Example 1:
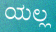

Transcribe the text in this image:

ಯಲ್ಲ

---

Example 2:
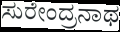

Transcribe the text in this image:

ಸುರೇಂದ್ರನಾಥ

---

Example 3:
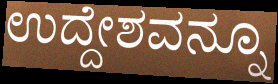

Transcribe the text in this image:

ಉದ್ದೇಶವನ್ನೂ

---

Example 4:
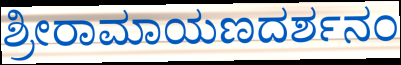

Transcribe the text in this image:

ಶ್ರೀರಾಮಾಯಣದರ್ಶನಂ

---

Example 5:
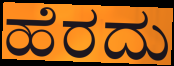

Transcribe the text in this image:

ಹೆರದು